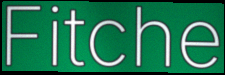
Fitche